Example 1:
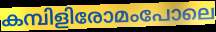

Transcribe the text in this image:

കമ്പിളിരോമംപോലെ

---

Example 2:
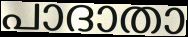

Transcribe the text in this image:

പാദാതാ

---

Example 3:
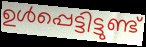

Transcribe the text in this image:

ഉൾപ്പെട്ടിട്ടുണ്ട്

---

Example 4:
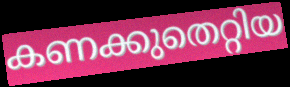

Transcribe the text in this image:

കണക്കുതെറ്റിയ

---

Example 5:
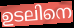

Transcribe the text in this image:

ഉടലിനെ